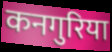
कनगुरिया